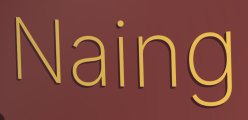
Naing